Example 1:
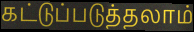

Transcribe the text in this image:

கட்டுப்படுத்தலாம்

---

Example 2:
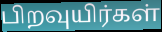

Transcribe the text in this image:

பிறவுயிர்கள்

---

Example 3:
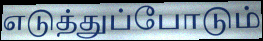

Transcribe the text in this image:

எடுத்துப்போடும்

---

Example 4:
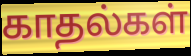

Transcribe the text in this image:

காதல்கள்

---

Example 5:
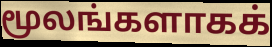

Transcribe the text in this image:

மூலங்களாகக்